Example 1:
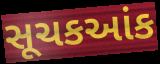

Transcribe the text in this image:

સૂચકઆંક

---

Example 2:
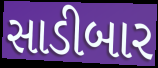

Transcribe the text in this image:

સાડીબાર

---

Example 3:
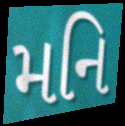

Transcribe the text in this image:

મનિ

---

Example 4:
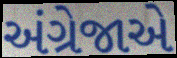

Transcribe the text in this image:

અંગ્રેજાએ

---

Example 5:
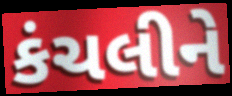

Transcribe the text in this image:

કંચલીને